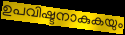
ഉപവിഷ്ടനാകുകയും